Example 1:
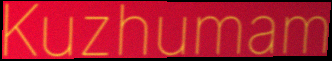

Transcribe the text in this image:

Kuzhumam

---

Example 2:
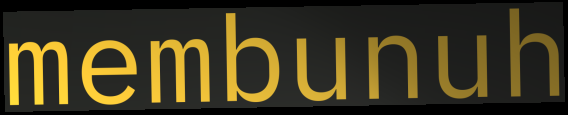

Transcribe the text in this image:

membunuh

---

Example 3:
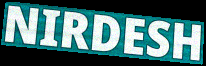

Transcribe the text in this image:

NIRDESH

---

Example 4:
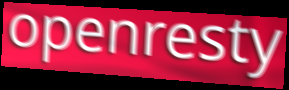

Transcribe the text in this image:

openresty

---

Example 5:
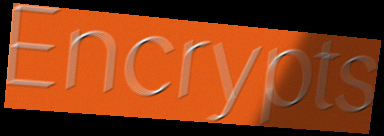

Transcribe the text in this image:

Encrypts